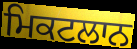
ਮਿਕਟਲਾਨ